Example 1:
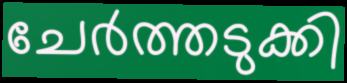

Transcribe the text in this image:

ചേർത്തടുക്കി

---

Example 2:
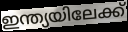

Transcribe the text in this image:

ഇന്ത്യയിലേക്ക്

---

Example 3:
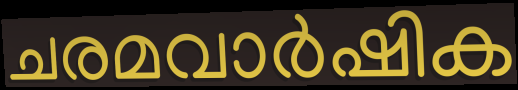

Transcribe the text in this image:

ചരമവാർഷിക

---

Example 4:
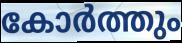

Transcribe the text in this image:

കോർത്തും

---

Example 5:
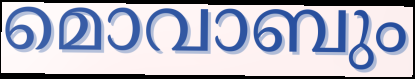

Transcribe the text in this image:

മൊവാബും